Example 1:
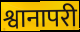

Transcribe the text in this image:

श्वानापरी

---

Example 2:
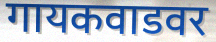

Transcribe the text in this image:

गायकवाडवर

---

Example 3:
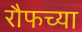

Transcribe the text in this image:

रौफच्या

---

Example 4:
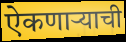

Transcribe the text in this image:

ऐकणार्‍याची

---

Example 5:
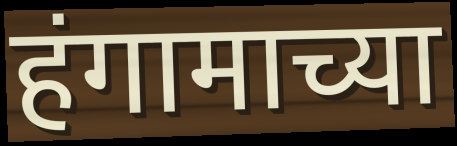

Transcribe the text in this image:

हंगामाच्या